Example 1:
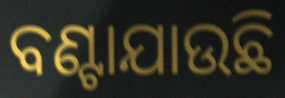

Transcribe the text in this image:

ବଣ୍ଟାଯାଉଛି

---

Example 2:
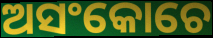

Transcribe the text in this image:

ଅସଂକୋଚେ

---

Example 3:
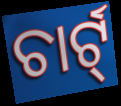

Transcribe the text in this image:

ଚାର୍ଟ୍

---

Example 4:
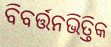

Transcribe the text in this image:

ବିବର୍ତ୍ତନଭିତ୍ତିକ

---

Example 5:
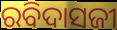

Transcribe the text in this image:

ରବିଦାସଜୀ